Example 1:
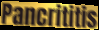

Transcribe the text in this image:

Pancrititis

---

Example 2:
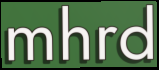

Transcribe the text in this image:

mhrd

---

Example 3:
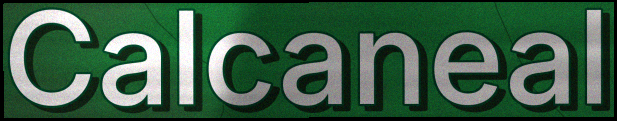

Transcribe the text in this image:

Calcaneal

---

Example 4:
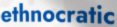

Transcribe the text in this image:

ethnocratic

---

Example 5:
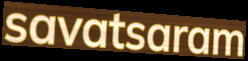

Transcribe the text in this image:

savatsaram